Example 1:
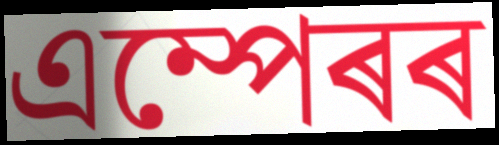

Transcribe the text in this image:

এম্পেৰৰ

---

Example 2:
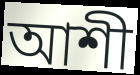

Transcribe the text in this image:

আশী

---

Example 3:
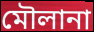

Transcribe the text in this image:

মৌলানা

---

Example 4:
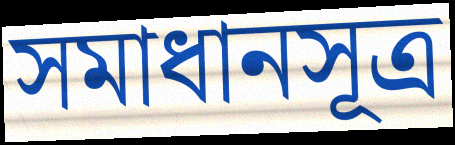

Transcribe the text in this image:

সমাধানসূত্ৰ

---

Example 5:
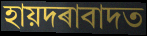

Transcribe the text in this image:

হায়দৰাবাদত